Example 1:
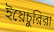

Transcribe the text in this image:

ইয়েচুরিরা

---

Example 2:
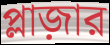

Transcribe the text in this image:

প্লাজ়ার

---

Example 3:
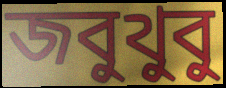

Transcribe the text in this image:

জবুথুবু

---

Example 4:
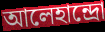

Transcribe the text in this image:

আলেহান্দ্রো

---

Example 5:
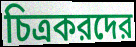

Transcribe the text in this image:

চিত্রকরদের